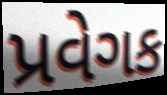
પ્રવેગક